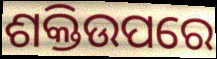
ଶକ୍ତିଉପରେ